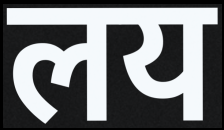
लय